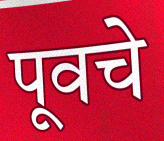
पूवचे